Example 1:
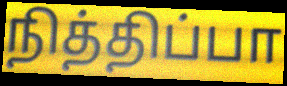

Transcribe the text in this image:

நித்திப்பா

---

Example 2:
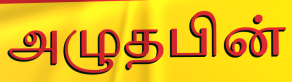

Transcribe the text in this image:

அழுதபின்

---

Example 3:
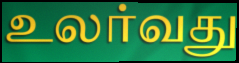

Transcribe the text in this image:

உலர்வது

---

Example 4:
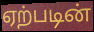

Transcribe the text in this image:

ஏற்படின்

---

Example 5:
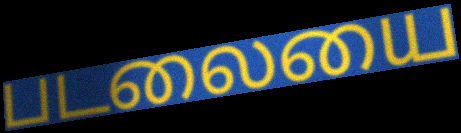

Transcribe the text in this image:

படலையை